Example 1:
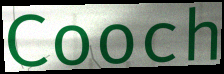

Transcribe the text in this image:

Cooch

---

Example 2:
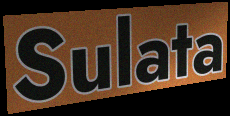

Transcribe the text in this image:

Sulata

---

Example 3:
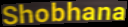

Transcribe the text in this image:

Shobhana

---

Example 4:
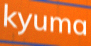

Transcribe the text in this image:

kyuma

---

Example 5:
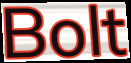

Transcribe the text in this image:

Bolt